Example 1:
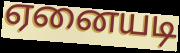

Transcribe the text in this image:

ஏனையடி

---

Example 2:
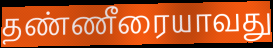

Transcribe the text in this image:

தண்ணீரையாவது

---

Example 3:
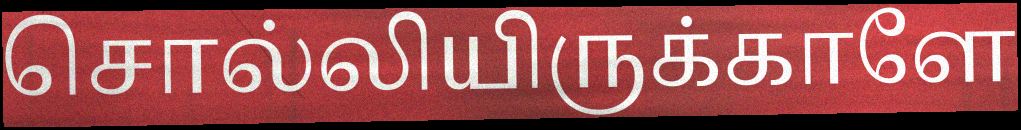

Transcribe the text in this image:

சொல்லியிருக்காளே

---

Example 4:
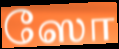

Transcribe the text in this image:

ஸோ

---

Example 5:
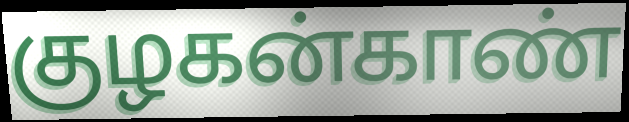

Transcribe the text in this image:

குழகன்காண்